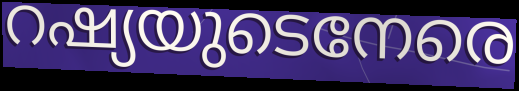
റഷ്യയുടെനേരെ